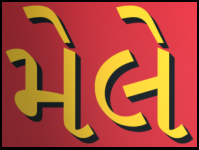
મેલે